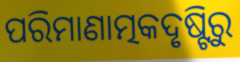
ପରିମାଣାତ୍ମକଦୃଷ୍ଟିରୁ